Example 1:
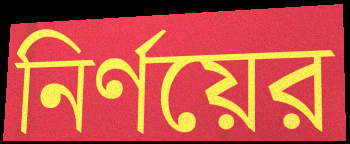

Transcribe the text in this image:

নির্ণয়ের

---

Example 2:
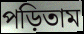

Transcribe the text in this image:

পড়িতাম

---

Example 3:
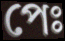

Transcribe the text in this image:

পেঃ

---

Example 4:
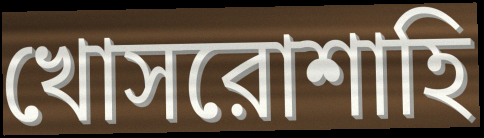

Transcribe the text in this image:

খোসরোশাহি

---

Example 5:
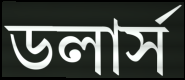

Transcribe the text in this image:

ডলার্স